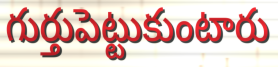
గుర్తుపెట్టుకుంటారు